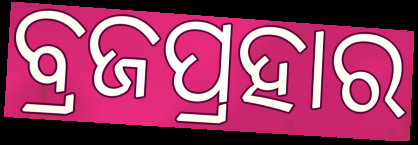
ବ୍ରଜପ୍ରହାର